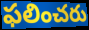
ఫలించరు